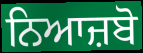
ਨਿਆਜ਼ਬੋ